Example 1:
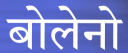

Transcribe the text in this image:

बोलेनो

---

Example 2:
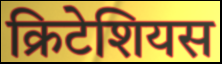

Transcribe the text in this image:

क्रिटेशियस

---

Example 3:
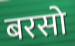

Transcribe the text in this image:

बरसो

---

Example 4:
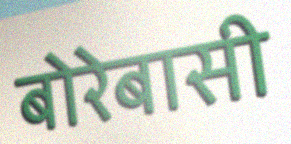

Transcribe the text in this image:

बोरेबासी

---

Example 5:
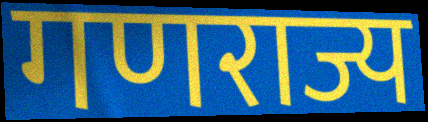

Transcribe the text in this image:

गणराज्य